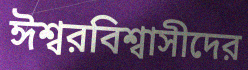
ঈশ্বরবিশ্বাসীদের